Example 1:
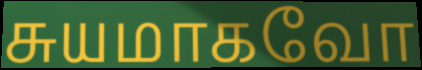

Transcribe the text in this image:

சுயமாகவோ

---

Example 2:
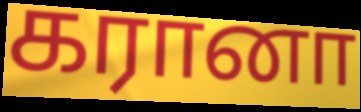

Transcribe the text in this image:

கரானா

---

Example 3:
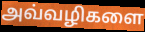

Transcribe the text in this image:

அவ்வழிகளை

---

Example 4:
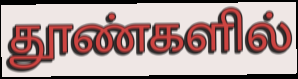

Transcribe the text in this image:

தூண்களில்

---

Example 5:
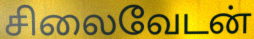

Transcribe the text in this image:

சிலைவேடன்